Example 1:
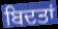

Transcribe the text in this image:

ਬਿਦਤਾਂ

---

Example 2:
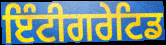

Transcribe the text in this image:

ਇੰਟੀਗਰੇਟਿਡ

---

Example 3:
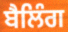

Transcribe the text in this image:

ਬੈਲਿੰਗ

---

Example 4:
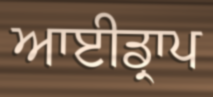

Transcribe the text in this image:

ਆਈਡ੍ਰਾਪ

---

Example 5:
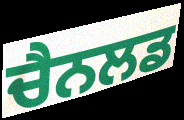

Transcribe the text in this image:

ਚੈਨਲਡ